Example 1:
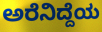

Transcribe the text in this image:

ಅರೆನಿದ್ದೆಯ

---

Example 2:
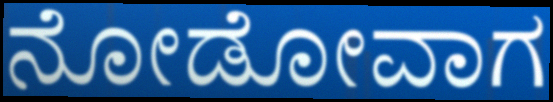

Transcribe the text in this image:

ನೋಡೋವಾಗ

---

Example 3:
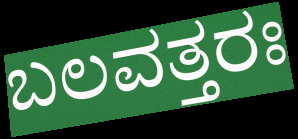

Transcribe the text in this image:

ಬಲವತ್ತರಃ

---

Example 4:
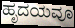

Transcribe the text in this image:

ಹೃದಯವೂ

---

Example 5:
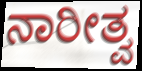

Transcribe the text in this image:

ನಾರೀತ್ವ